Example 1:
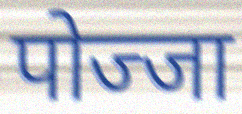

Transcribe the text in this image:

पोज्जा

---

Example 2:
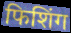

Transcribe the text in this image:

फिशिंग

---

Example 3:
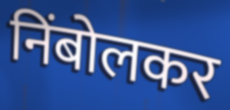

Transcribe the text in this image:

निंबोलकर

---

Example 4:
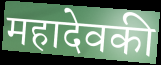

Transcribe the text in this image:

महादेवकी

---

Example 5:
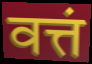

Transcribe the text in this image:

वत्तं